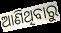
ଆଣିଥିବାରୁ